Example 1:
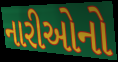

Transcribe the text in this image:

નારીઓનો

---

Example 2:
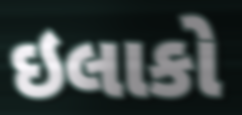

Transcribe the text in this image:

ઇલાકો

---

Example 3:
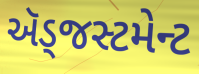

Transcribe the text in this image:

ઍડ્જસ્ટમેન્ટ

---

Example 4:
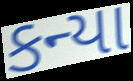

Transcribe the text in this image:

કન્યા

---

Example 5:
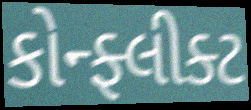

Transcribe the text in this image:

કોન્ફ્લીક્ટ